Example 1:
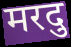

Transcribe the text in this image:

मरदु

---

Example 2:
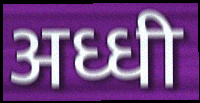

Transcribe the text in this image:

अध्धी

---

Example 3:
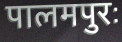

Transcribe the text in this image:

पालमपुरः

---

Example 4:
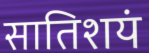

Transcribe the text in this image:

सातिशयं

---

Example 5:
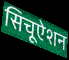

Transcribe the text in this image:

सिचूऐशन